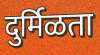
दुर्मिळता